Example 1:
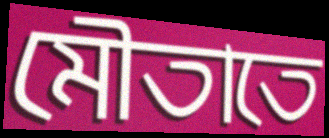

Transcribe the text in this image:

মৌতাতে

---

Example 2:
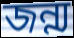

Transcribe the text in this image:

জন্ম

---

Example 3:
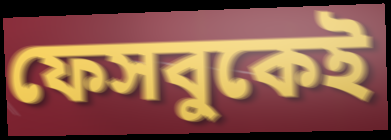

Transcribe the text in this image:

ফেসবুকেই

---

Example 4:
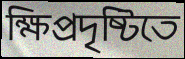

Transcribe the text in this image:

ক্ষিপ্রদৃষ্টিতে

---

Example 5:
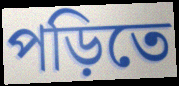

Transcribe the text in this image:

পড়িতে